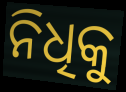
ନିଧିକୁ